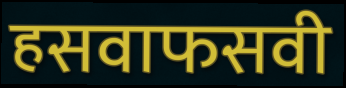
हसवाफसवी